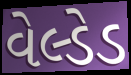
વેલ્ડેડ